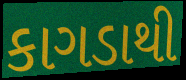
કાગડાથી